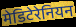
मेडिटेरेनियन